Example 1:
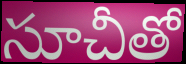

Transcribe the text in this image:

సూచీతో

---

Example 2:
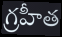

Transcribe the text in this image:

గ్రహీత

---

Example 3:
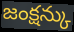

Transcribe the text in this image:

జంక్షన్కు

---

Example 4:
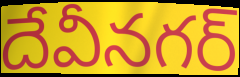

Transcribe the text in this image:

దేవీనగర్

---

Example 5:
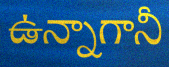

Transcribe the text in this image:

ఉన్నాగానీ